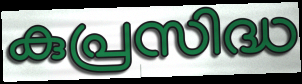
കുപ്രസിദ്ധ